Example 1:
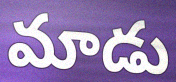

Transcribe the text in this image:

మాడు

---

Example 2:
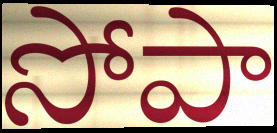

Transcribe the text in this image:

సోపా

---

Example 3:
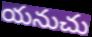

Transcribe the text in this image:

యనుచు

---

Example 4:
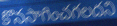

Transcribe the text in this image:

కొనసాగించగలదని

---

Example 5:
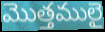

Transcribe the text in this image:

మొత్తములై